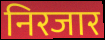
निरजार